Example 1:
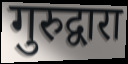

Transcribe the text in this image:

गुरुद्वारा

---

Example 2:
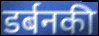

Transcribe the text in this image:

डर्बनकी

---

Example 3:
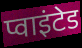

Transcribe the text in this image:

प्वाइंटेड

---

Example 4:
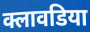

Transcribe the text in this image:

क्लावडिया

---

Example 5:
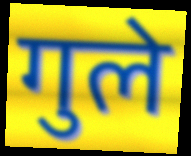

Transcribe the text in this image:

गुले